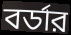
বর্ডার